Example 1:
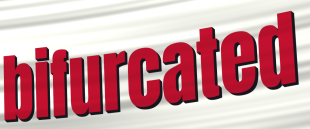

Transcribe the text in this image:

bifurcated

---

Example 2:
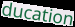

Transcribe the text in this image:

ducation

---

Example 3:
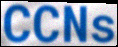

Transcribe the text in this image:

CCNs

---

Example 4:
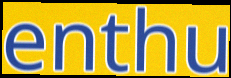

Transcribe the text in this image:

enthu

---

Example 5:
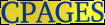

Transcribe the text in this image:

CPAGES